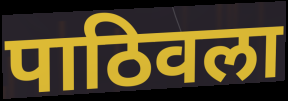
पाठिवला